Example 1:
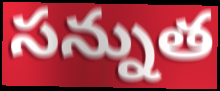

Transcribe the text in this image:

సన్నుత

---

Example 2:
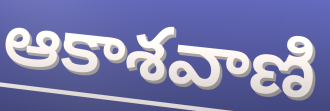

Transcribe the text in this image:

ఆకాశవాణి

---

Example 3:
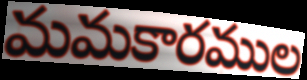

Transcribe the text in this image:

మమకారముల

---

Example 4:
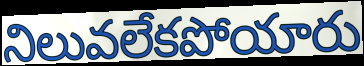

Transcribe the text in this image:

నిలువలేకపోయారు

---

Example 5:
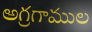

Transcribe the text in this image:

అగ్రగాముల